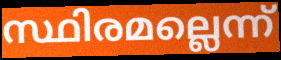
സ്ഥിരമല്ലെന്ന്